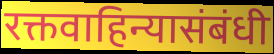
रक्तवाहिन्यासंबंधी